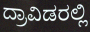
ದ್ರಾವಿಡರಲ್ಲಿ